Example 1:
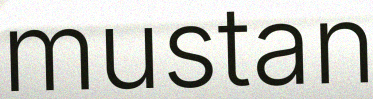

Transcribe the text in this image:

mustan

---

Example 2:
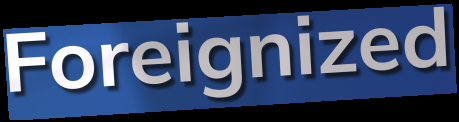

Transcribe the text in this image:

Foreignized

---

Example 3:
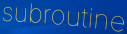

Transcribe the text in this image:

subroutine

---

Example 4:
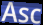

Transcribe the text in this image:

Asc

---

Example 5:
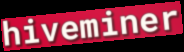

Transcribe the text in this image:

hiveminer